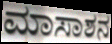
ಮಾಸಾಶನ